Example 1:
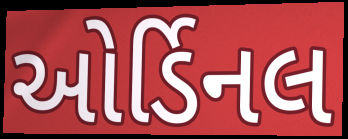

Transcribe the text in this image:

ઓર્ડિનલ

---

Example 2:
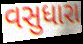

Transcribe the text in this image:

વસુધારા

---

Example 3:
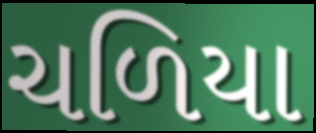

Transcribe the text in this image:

ચળિયા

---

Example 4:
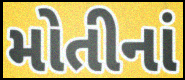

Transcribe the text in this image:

મોતીનાં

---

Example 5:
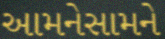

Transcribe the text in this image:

આમનેસામને